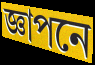
জ্ঞাপনে